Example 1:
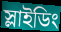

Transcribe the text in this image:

স্লাইডিং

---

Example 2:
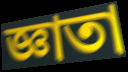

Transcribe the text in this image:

জ্ঞাতা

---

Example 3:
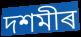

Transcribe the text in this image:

দশমীৰ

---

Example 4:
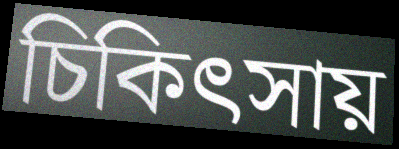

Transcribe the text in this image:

চিকিৎসায়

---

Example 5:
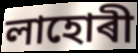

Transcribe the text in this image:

লাহোৰী